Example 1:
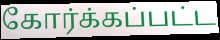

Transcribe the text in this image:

கோர்க்கப்பட்ட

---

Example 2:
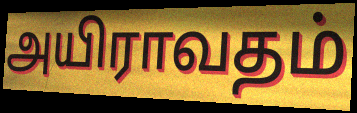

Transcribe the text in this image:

அயிராவதம்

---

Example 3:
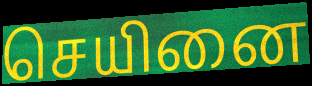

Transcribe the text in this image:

செயினை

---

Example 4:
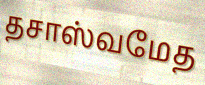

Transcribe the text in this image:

தசாஸ்வமேத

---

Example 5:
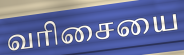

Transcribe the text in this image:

வரிசையை